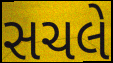
સચલે